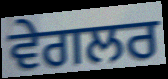
ਵੇਗਲਰ